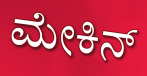
ಮೇಕಿನ್